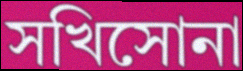
সখিসোনা